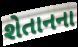
શેતાનના